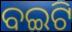
ବଇଟି